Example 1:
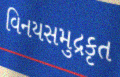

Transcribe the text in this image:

વિનયસમુદ્રકૃત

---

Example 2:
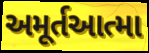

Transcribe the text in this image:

અમૂર્તઆત્મા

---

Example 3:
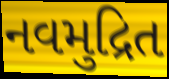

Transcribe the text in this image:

નવમુદ્રિત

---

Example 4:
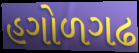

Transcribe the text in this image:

હગોળગઢ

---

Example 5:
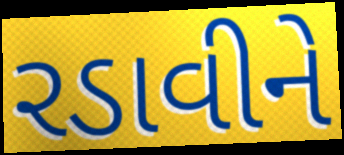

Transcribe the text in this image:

રડાવીને